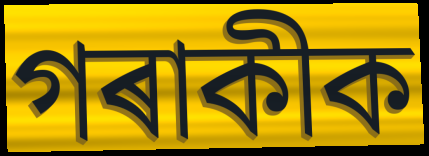
গৰাকীক